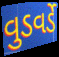
વુડવર્ડે